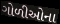
ગોળીઓના